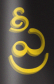
ప్రీ